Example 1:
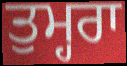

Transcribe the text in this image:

ਤੁਮ੍ਹਰਾ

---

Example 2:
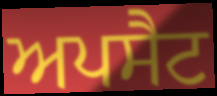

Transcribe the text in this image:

ਅਪਸੈਟ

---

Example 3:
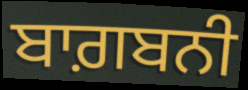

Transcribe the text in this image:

ਬਾਗ਼ਬਨੀ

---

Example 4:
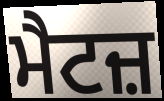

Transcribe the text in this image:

ਮੈਟਜ਼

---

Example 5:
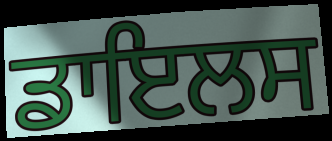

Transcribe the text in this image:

ਡਾਇਲਸ